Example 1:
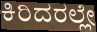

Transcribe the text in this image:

ಕಿರಿದರಲ್ಲೇ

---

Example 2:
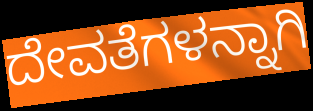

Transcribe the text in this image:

ದೇವತೆಗಳನ್ನಾಗಿ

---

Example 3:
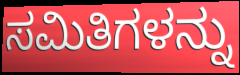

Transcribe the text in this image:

ಸಮಿತಿಗಳನ್ನು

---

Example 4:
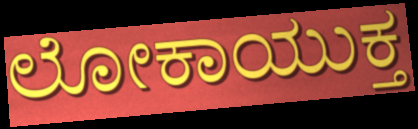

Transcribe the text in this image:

ಲೋಕಾಯುಕ್ತ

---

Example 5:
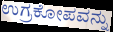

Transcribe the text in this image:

ಉಗ್ರಕೋಪವನ್ನು